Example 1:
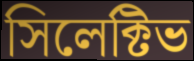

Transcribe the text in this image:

সিলেক্টিভ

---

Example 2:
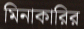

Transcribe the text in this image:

মিনাকারির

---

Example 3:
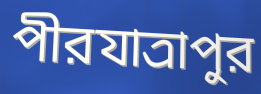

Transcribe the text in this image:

পীরযাত্রাপুর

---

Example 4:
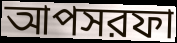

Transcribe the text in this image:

আপসরফা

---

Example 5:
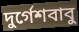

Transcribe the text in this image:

দুর্গেশবাবু